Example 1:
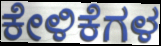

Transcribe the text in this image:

ಕೇಳಿಕೆಗಳ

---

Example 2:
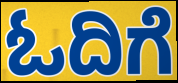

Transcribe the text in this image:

ಓದಿಗೆ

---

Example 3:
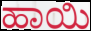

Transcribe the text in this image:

ಹಾಯಿ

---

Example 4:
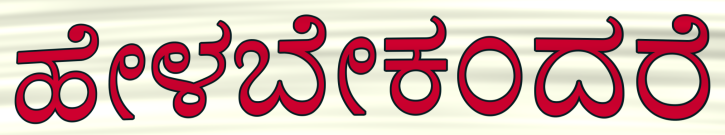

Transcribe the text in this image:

ಹೇಳಬೇಕಂದರೆ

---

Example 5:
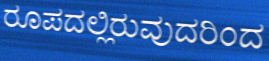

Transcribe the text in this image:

ರೂಪದಲ್ಲಿರುವುದರಿಂದ